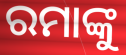
ରମାଙ୍କୁ